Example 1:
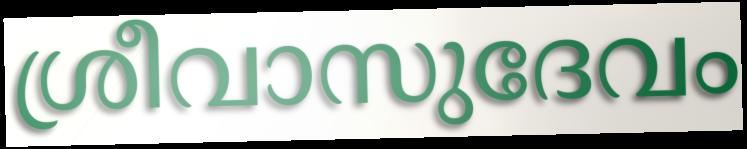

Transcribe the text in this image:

ശ്രീവാസുദേവം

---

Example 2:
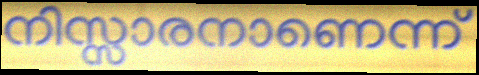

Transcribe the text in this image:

നിസ്സാരനാണെന്ന്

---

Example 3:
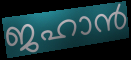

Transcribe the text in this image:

ജഹാൻ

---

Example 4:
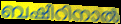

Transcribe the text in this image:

ബഷീറിനാൽ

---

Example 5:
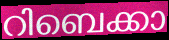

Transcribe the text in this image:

റിബെക്കാ